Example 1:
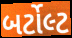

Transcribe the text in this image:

બર્ટોલ્ટ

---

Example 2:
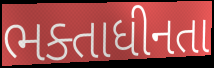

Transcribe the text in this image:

ભક્તાધીનતા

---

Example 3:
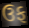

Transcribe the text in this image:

ઉફ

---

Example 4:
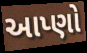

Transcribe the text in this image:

આપ્ણો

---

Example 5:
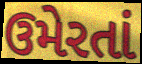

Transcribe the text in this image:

ઉમેરતાં